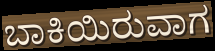
ಬಾಕಿಯಿರುವಾಗ